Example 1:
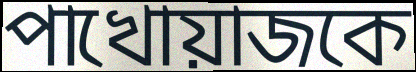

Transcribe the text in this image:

পাখোয়াজকে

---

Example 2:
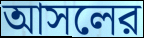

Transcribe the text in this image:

আসলের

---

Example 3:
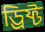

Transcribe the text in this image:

ড্রিফ্ট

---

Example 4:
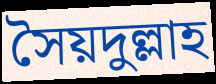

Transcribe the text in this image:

সৈয়দুল্লাহ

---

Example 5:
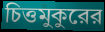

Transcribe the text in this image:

চিত্তমুকুরের